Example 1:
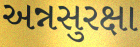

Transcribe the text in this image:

અન્નસુરક્ષા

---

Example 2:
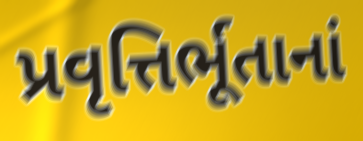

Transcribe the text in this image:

પ્રવૃત્તિર્ભૂતાનાં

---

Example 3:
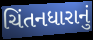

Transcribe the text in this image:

ચિંતનધારાનું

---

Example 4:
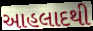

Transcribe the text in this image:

આહલાદથી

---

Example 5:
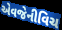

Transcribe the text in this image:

એવજેનીવિચ